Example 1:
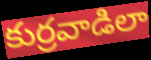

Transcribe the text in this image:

కుర్రవాడిలా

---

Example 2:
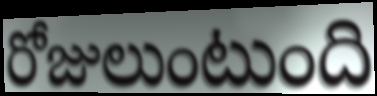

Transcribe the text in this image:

రోజులుంటుంది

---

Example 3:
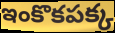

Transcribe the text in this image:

ఇంకొకపక్క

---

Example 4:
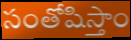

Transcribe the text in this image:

సంతోషిస్తాం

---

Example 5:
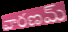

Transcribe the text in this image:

వారణమ్